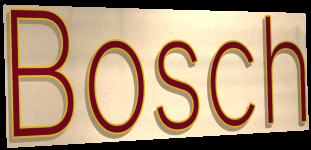
Bosch